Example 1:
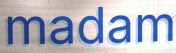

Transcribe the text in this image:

madam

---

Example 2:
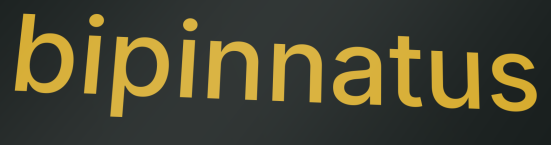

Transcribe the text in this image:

bipinnatus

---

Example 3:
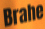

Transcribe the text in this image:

Brahe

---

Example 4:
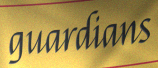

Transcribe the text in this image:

guardians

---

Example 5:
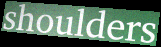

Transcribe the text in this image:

shoulders